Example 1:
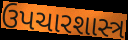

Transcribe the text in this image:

ઉપચારશાસ્ત્ર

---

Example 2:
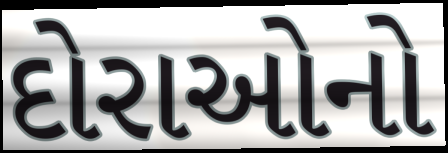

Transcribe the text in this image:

દોરાઓનો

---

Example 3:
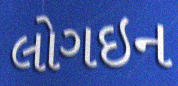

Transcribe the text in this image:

લોગઇન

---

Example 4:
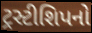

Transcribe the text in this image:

ટ્રસ્ટીશિપનો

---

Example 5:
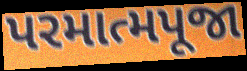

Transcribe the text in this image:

પરમાત્મપૂજા